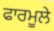
ਫਾਰਮੂਲੇ